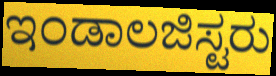
ಇಂಡಾಲಜಿಸ್ಟರು